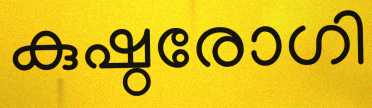
കുഷ്ഠരോഗി